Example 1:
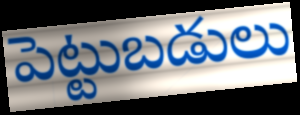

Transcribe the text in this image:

పెట్టుబడులు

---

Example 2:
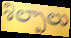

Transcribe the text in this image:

శిల్పాలు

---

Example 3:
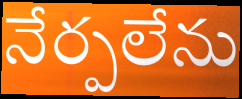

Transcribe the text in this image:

నేర్పలేను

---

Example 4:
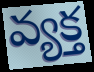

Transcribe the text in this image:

వ్యక్త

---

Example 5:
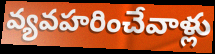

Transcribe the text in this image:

వ్యవహరించేవాళ్లు